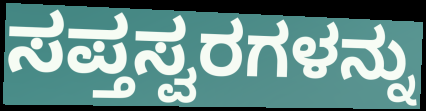
ಸಪ್ತಸ್ವರಗಳನ್ನು